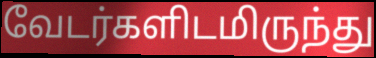
வேடர்களிடமிருந்து